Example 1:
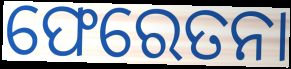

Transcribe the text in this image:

ଫେରେତନା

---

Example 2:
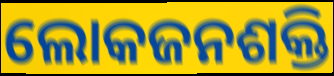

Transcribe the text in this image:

ଲୋକଜନଶକ୍ତି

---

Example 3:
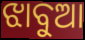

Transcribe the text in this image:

ଝାବୁଆ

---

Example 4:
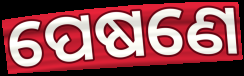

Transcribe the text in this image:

ପେଷଣେ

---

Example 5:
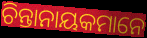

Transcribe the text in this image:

ଚିନ୍ତାନାୟକମାନେ